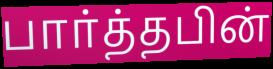
பார்த்தபின்